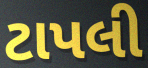
ટાપલી